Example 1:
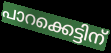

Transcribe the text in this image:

പാറക്കെട്ടിന്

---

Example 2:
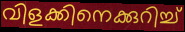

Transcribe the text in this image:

വിളക്കിനെക്കുറിച്ച്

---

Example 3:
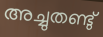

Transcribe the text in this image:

അച്ചുതണ്ടു്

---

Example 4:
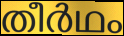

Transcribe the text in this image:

തീർഥം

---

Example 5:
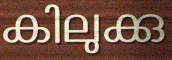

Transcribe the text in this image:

കിലുക്കു